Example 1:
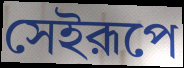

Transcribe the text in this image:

সেইরূপে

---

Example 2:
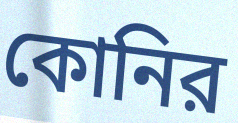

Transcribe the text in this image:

কোনির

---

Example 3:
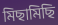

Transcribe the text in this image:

মিছামিছি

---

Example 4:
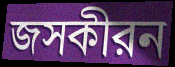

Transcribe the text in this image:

জসকীরন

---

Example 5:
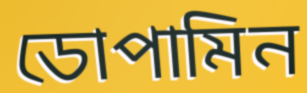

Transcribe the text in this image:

ডোপামিন